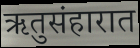
ऋतुसंहारात